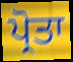
ਪ੍ਰੋਤਾ